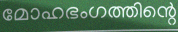
മോഹഭംഗത്തിന്റെ